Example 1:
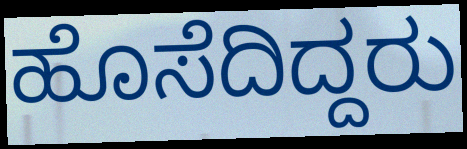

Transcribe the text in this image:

ಹೊಸೆದಿದ್ದರು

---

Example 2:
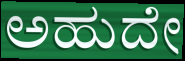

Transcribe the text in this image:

ಅಹುದೇ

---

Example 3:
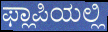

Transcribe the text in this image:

ಫ್ಲಾಪಿಯಲ್ಲಿ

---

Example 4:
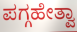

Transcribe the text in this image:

ಪಗ್ಗಹೇತ್ವಾ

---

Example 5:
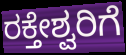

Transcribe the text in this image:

ರಕ್ತೇಶ್ವರಿಗೆ